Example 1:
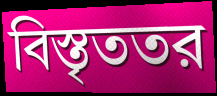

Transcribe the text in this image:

বিস্তৃততর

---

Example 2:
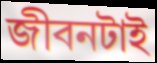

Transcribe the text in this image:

জীবনটাই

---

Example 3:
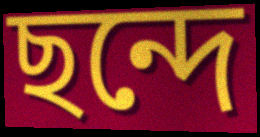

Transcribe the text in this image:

ছন্দে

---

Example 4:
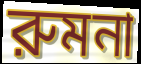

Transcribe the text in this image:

রুমনা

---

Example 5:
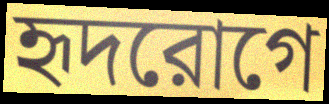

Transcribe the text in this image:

হৃদরোগে